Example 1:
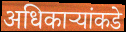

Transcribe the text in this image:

अधिकार्‍यांकडे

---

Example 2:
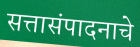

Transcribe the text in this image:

सत्तासंपादनाचे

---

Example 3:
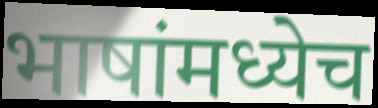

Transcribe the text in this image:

भाषांमध्येच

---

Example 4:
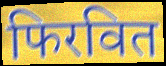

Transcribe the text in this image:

फिरवित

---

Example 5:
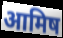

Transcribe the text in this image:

आमिष